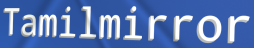
Tamilmirror